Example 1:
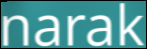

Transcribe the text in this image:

narak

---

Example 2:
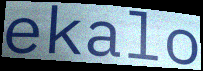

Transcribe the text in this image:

ekalo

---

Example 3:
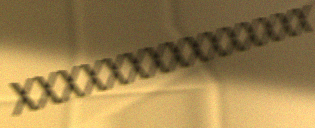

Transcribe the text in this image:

xxxxxxxxxxxxxxx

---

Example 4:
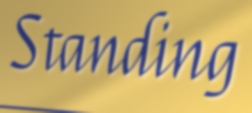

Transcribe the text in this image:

Standing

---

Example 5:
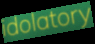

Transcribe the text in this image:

idolatory